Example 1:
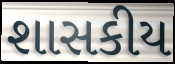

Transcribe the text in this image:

શાસકીય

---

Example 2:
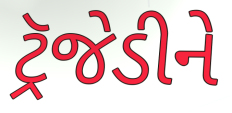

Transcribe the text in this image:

ટ્રૅજેડીને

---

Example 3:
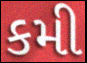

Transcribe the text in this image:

કમી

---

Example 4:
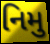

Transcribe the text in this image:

નિમુ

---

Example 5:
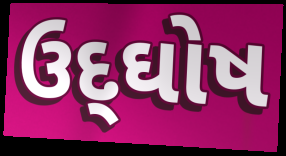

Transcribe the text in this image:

ઉદ્‌ઘોષ